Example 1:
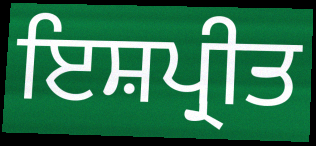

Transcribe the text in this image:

ਇਸ਼ਪ੍ਰੀਤ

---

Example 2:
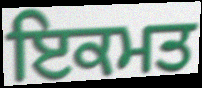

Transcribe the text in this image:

ਇਕਮਤ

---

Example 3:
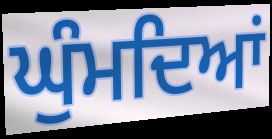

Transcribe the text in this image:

ਘੁੰਮਦਿਆਂ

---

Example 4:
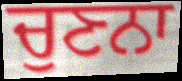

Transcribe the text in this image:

ਚੁਣਨਾ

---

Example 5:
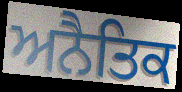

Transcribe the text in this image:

ਅਨੈਤਿਕ